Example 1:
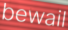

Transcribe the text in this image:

bewail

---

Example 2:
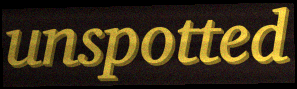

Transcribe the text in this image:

unspotted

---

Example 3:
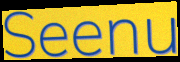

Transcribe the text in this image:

Seenu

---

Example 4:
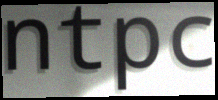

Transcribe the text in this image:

ntpc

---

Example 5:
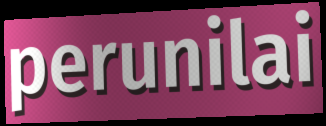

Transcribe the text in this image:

perunilai